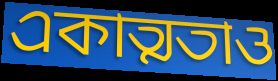
একাত্মতাও